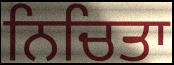
ਨਿਚਿਤਾ